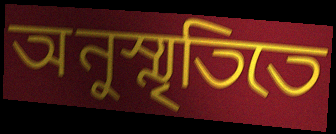
অনুস্মৃতিতে